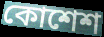
কোশেশ